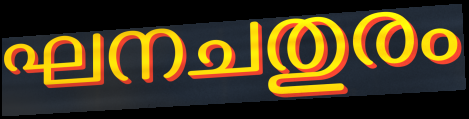
ഘനചതുരം